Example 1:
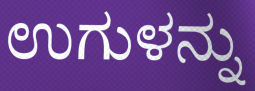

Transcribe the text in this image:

ಉಗುಳನ್ನು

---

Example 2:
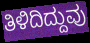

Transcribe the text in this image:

ತಿಳಿದಿದ್ದುವು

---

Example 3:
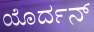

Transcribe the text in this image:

ಯೊರ್ದನ್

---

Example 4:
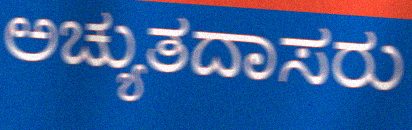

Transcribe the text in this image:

ಅಚ್ಯುತದಾಸರು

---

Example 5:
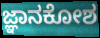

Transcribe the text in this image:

ಜ್ಞಾನಕೋಶ